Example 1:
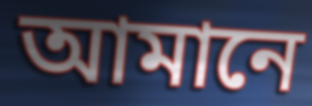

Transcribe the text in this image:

আমানে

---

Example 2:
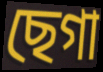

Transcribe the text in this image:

ছেগা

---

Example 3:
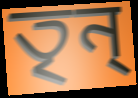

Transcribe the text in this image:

তৃন্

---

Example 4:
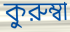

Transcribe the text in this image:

কুৰুম্বা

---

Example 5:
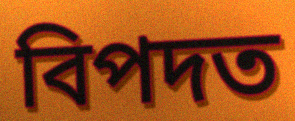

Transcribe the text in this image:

বিপদত